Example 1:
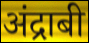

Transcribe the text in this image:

अंद्राबी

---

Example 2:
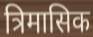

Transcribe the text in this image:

त्रिमासिक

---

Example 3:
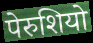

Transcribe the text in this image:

पेरुशियो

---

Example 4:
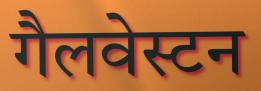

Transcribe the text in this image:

गैलवेस्टन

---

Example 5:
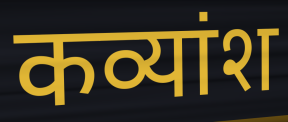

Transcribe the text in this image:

कव्यांश